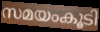
സമയംകൂടി